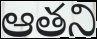
ఆతని